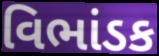
વિભાંડક